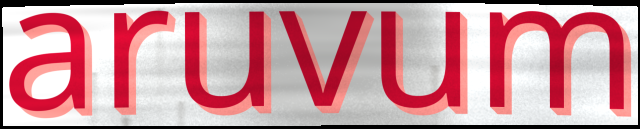
aruvum